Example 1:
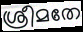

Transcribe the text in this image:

ശ്രീമതേ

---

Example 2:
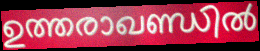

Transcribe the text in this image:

ഉത്തരാഖണ്ഡിൽ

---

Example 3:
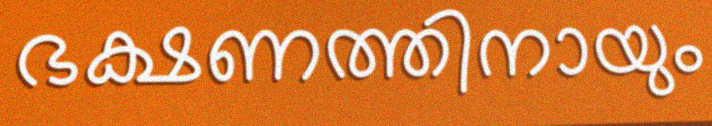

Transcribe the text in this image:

ഭക്ഷണത്തിനായും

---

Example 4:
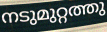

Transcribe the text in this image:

നടുമുറ്റത്തു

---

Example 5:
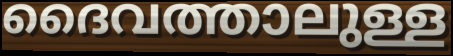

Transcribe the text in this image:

ദൈവത്താലുള്ള